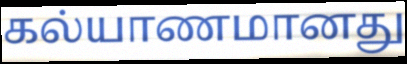
கல்யாணமானது